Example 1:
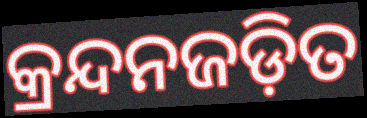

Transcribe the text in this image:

କ୍ରନ୍ଦନଜଡ଼ିତ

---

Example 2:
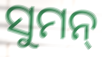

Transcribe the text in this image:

ସୁମନ୍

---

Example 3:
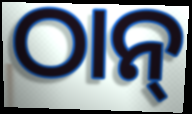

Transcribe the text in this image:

ଠାନ୍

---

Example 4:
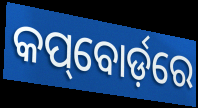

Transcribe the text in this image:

କପ୍‌ବୋର୍ଡ଼ରେ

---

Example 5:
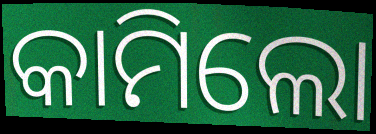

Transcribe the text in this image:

କାମିଲୋ